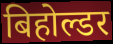
बिहोल्डर